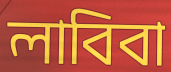
লাবিবা